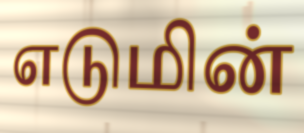
எடுமின்